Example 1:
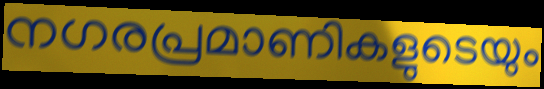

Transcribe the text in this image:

നഗരപ്രമാണികളുടെയും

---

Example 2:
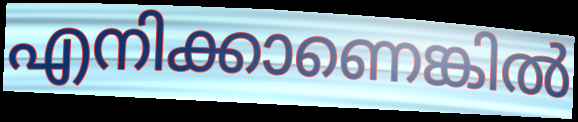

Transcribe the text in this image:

എനിക്കാണെങ്കിൽ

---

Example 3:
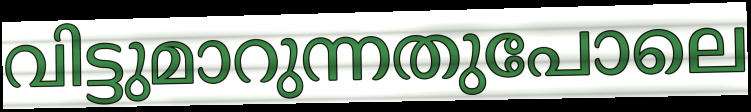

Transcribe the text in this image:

വിട്ടുമാറുന്നതുപോലെ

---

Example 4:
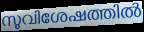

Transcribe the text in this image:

സുവിശേഷത്തിൽ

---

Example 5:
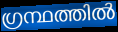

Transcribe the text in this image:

ഗ്രന്ഥത്തിൽ